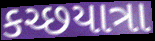
કચ્છયાત્રા